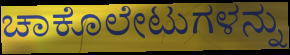
ಚಾಕೊಲೇಟುಗಳನ್ನು